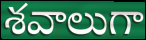
శవాలుగా